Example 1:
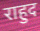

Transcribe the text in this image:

राहुद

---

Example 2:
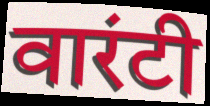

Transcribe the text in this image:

वारंटी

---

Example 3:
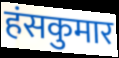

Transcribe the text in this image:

हंसकुमार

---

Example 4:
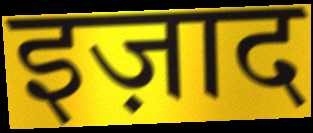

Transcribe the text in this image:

इज़ाद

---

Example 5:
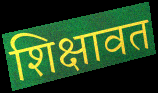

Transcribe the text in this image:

शिक्षावत